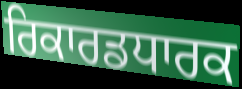
ਰਿਕਾਰਡਧਾਰਕ